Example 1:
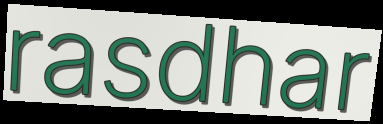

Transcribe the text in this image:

rasdhar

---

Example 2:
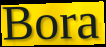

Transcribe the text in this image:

Bora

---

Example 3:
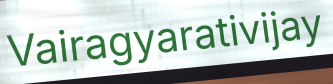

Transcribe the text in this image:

Vairagyarativijay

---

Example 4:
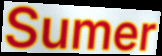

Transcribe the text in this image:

Sumer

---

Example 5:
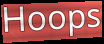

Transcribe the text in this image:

Hoops